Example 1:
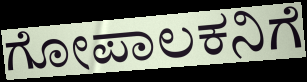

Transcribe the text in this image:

ಗೋಪಾಲಕನಿಗೆ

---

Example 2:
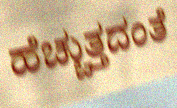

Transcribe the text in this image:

ಹೆಚ್ಚುತ್ತದಂತೆ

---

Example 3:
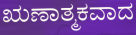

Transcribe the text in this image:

ಋಣಾತ್ಮಕವಾದ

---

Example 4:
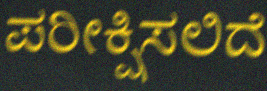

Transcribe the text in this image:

ಪರೀಕ್ಷಿಸಲಿದೆ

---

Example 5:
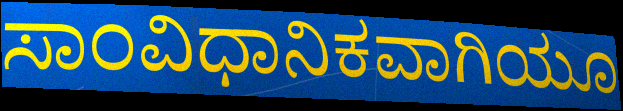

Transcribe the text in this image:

ಸಾಂವಿಧಾನಿಕವಾಗಿಯೂ